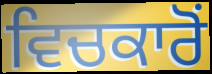
ਵਿਚਕਾਰੋਂ